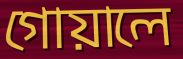
গোয়ালে